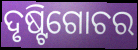
ଦୃଷ୍ଟିଗୋଚର